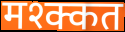
मश्क्कत